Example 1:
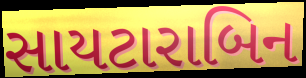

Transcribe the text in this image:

સાયટારાબિન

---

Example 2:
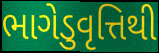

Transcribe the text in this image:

ભાગેડુવૃત્તિથી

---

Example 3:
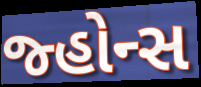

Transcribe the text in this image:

જ્હોન્સ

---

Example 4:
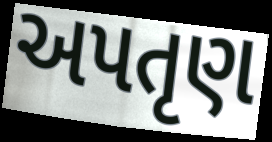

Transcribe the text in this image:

અપતૃણ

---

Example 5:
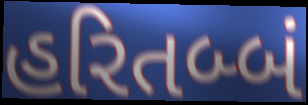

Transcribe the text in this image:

હરિતબ્બં